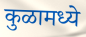
कुळामध्ये